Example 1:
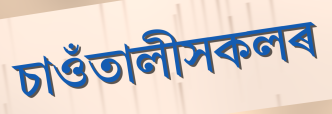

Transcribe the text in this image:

চাওঁতালীসকলৰ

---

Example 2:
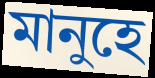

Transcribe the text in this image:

মানুহে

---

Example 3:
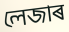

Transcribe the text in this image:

লেজাৰ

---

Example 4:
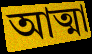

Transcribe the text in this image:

আত্মা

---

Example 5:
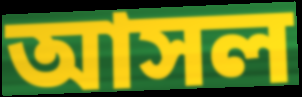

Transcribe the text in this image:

আসল